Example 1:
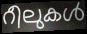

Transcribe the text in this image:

റീലുകൾ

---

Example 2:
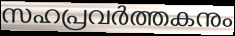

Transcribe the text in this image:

സഹപ്രവർത്തകനും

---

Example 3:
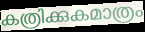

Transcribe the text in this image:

കത്രിക്കുകമാത്രം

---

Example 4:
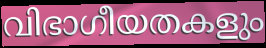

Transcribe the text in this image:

വിഭാഗീയതകളും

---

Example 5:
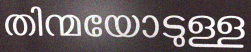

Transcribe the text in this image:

തിന്മയോടുള്ള